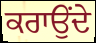
ਕਰਾਉੰਦੇ